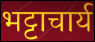
भट्टाचार्य